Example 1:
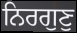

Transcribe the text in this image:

ਨਿਰਗੁਣੁ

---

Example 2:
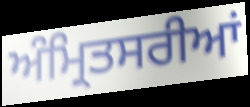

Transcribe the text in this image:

ਅੰਮ੍ਰਿਤਸਰੀਆਂ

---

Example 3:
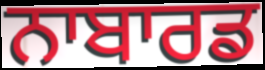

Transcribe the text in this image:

ਨਾਬਾਰਡ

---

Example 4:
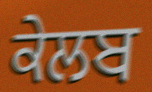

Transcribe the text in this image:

ਕੇਲਬ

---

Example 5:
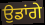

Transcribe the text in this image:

ਉਡਾਂਗੇ